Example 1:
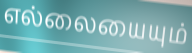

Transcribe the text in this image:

எல்லையையும்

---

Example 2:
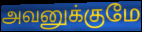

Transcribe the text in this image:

அவனுக்குமே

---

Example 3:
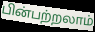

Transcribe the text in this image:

பின்பற்றலாம்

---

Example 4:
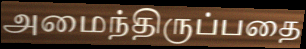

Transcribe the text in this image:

அமைந்திருப்பதை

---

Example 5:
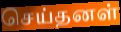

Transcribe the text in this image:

செய்தனள்